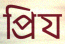
প্রিয